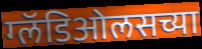
ग्लॅडिओलसच्या